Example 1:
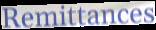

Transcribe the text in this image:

Remittances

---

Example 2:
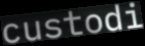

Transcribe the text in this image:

custodi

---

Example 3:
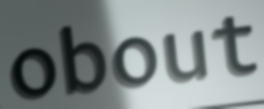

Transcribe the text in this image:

obout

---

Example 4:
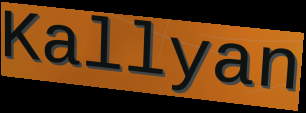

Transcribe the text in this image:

Kallyan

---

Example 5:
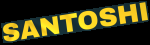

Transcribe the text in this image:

SANTOSHI